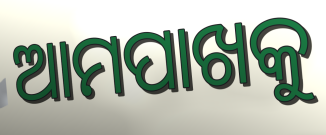
ଆମପାଖକୁ